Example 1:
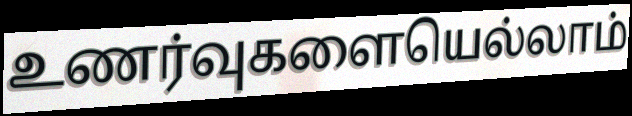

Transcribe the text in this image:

உணர்வுகளையெல்லாம்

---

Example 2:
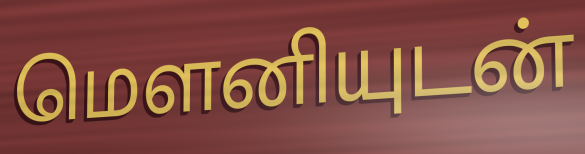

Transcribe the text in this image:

மௌனியுடன்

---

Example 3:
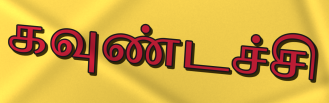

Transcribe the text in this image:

கவுண்டச்சி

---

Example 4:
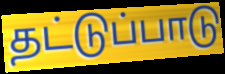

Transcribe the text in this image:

தட்டுப்பாடு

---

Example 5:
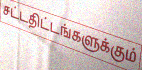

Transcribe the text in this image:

சட்டதிட்டங்களுக்கும்